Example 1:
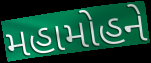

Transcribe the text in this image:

મહામોહને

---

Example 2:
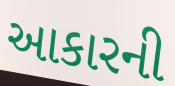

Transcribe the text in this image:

આકારની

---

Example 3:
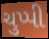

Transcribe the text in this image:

ચુપ્પી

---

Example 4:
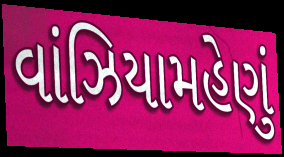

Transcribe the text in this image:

વાંઝિયામહેણું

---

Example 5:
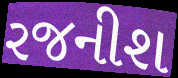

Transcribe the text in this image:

રજનીશ